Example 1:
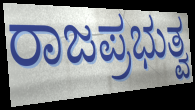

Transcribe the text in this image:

ರಾಜಪ್ರಭುತ್ವ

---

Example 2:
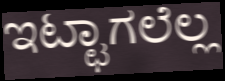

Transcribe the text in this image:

ಇಟ್ಟಾಗಲೆಲ್ಲ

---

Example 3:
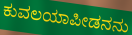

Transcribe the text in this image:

ಕುವಲಯಾಪೀಡನನು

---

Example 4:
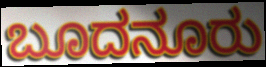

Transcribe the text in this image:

ಬೂದನೂರು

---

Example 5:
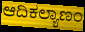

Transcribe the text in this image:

ಆದಿಕಲ್ಯಾಣಂ